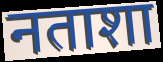
नताशा